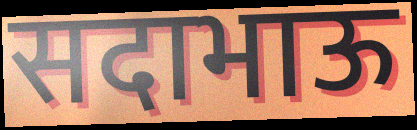
सदाभाऊ